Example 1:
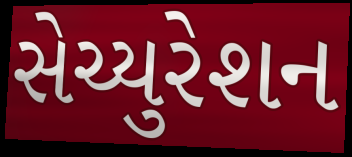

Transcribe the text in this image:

સેચ્યુરેશન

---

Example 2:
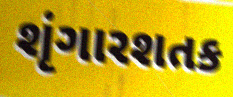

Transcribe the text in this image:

શૃંગારશતક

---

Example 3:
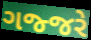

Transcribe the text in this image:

ગજ્જરે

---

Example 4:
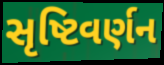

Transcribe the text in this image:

સૃષ્ટિવર્ણન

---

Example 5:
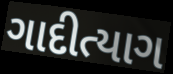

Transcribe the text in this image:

ગાદીત્યાગ